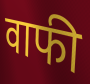
वाफी